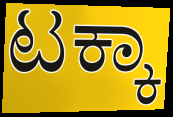
ಟಕ್ಕಾ